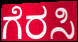
ಗೆರಸಿ